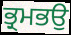
ਭ੍ਰਮਭਉ